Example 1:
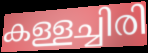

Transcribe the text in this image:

കള്ളച്ചിരി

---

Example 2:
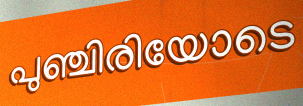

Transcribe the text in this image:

പുഞ്ചിരിയോടെ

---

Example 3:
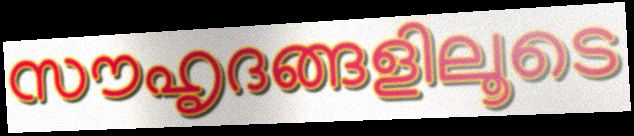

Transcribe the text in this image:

സൗഹൃദങ്ങളിലൂടെ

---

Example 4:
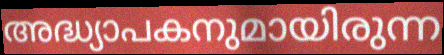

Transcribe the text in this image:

അദ്ധ്യാപകനുമായിരുന്ന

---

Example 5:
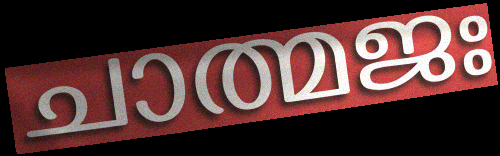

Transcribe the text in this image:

ചാത്മജഃ